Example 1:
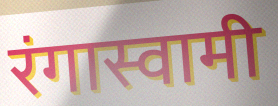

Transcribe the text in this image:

रंगास्वामी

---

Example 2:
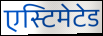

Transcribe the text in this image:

एस्टिमेटेड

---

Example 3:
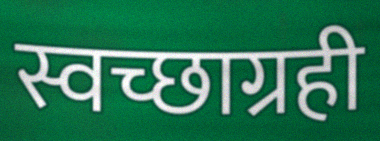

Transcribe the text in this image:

स्वच्छाग्रही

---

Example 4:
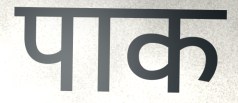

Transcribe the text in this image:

पाक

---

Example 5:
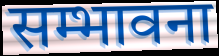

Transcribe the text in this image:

सम्भावना